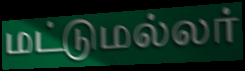
மட்டுமல்லர்